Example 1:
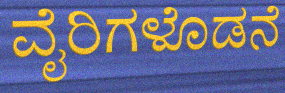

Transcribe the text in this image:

ವೈರಿಗಳೊಡನೆ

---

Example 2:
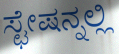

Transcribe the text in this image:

ಸ್ಟೇಷನ್ನಲ್ಲಿ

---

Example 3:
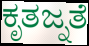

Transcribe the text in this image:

ಕೃತಜ್ನತೆ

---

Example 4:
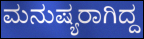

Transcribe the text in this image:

ಮನುಷ್ಯರಾಗಿದ್ದ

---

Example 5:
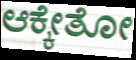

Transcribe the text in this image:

ಆಕ್ಕೇತೋ